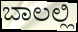
ಬಾಲಲ್ಲಿ